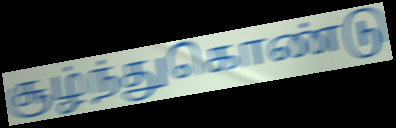
சூழ்ந்துகொண்டு